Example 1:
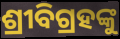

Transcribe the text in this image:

ଶ୍ରୀବିଗ୍ରହଙ୍କୁ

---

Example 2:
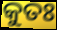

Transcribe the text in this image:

କୁତଃ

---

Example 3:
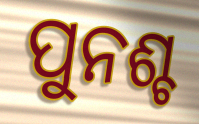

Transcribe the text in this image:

ପୁନଶ୍ଚ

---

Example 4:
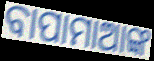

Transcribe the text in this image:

ବାପାମାଆଙ୍କ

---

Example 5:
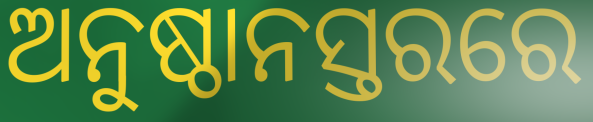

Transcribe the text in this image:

ଅନୁଷ୍ଠାନସ୍ତରରେ